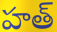
హత్